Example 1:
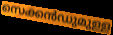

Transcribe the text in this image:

സെക്കൻഡുമുള്ള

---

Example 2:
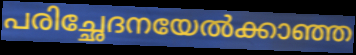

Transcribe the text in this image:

പരിച്ഛേദനയേൽക്കാഞ്ഞ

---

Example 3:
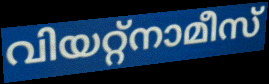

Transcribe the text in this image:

വിയറ്റ്നാമീസ്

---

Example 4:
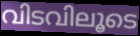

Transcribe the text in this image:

വിടവിലൂടെ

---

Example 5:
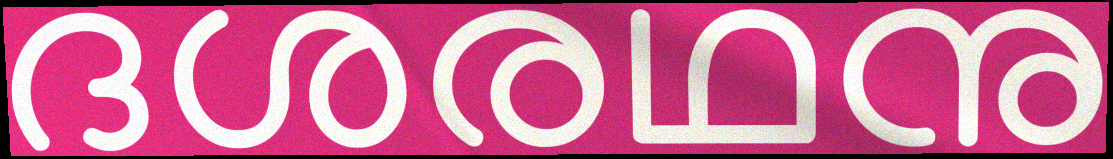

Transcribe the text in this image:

ദശരഥനു